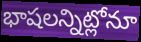
భాషలన్నిట్లోనూ